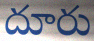
దూరు